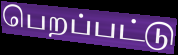
பெறப்பட்டு